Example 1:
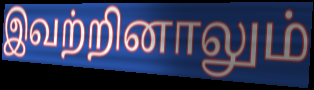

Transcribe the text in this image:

இவற்றினாலும்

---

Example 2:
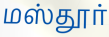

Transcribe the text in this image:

மஸ்தூர்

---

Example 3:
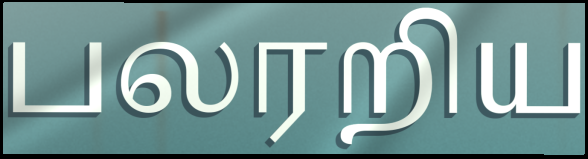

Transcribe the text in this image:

பலரறிய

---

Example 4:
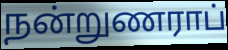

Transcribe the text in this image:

நன்றுணராப்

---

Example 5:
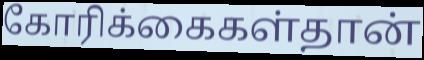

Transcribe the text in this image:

கோரிக்கைகள்தான்